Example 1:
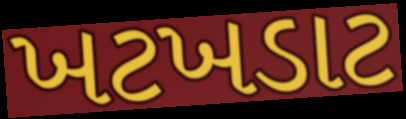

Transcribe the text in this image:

ખટખડાટ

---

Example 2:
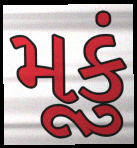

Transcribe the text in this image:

મૂકું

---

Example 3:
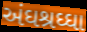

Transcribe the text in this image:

અંઘશ્રઘ્ઘા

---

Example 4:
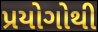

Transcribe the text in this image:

પ્રયોગોથી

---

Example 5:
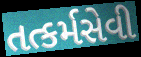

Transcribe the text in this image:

તત્કર્મસેવી